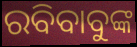
ରବିବାବୁଙ୍କ